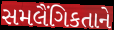
સમલૈંગિકતાને